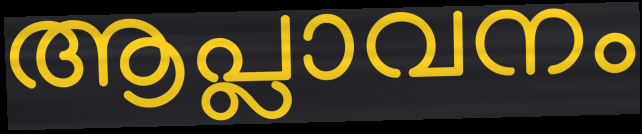
ആപ്ലാവനം